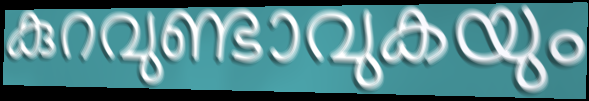
കുറവുണ്ടാവുകയും